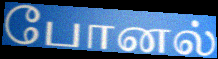
போனல்